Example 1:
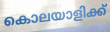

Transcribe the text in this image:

കൊലയാളിക്ക്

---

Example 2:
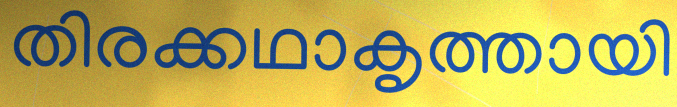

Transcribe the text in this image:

തിരക്കഥാകൃത്തായി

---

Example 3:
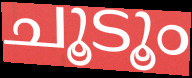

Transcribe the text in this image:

ചൂടൂം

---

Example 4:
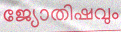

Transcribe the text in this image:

ജ്യോതിഷവും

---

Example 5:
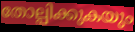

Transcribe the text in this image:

തോല്പിക്കുകയും